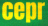
cepr